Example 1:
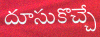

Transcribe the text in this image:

దూసుకొచ్చే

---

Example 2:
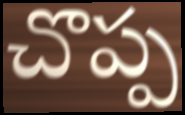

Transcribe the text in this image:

చొప్ప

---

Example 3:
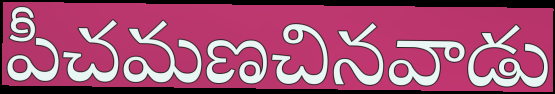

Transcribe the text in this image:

పీచమణచినవాడు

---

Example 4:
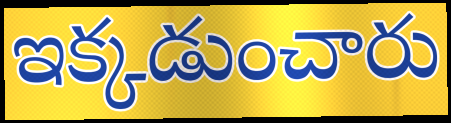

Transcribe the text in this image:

ఇక్కడుంచారు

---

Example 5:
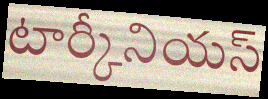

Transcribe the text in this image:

టార్కీనియస్